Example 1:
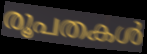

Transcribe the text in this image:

രൂപതകൾ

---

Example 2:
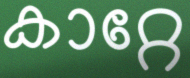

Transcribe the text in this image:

കാറ്റേ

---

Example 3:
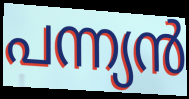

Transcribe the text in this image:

പന്ന്യൻ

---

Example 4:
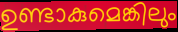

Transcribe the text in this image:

ഉണ്ടാകുമെങ്കിലും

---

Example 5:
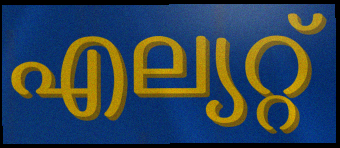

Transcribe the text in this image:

എല്യറ്റ്